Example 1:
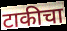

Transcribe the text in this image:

टाकीचा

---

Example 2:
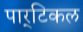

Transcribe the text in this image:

पार्टिकल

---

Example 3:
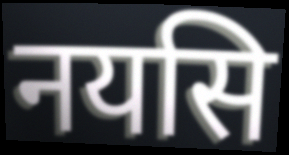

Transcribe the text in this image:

नयसि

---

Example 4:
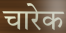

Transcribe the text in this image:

चारेक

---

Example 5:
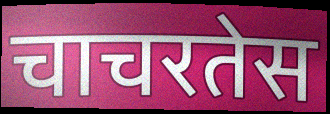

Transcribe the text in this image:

चाचरतेस